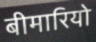
बीमारियो